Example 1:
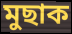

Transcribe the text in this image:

মুছাক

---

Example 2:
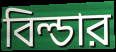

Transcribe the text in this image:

বিল্ডার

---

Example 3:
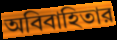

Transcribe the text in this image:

অবিবাহিতার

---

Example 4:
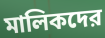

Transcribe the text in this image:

মালিকদের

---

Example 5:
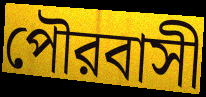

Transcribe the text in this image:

পৌরবাসী